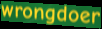
wrongdoer